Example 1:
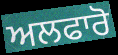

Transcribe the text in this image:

ਅਲਫਾਰੋ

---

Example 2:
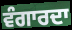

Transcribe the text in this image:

ਵੰਗਾਰਦਾ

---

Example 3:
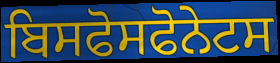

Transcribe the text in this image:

ਬਿਸਫੋਸਫੋਨੇਟਸ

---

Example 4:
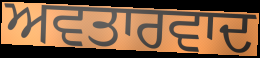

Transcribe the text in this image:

ਅਵਤਾਰਵਾਦ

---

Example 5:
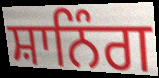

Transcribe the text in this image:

ਸ਼ਾਨਿੰਗ